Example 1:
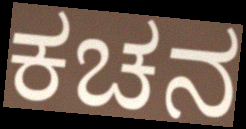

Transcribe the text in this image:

ಕಚನ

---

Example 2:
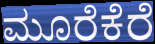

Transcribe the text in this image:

ಮೂರೆಕೆರೆ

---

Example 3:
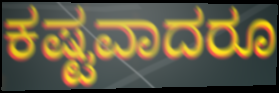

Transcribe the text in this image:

ಕಷ್ಟವಾದರೂ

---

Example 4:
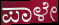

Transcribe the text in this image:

ಪಾಳೇ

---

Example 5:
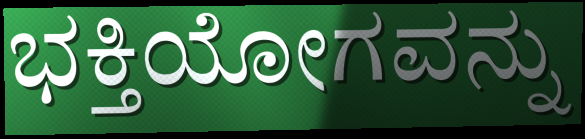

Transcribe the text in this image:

ಭಕ್ತಿಯೋಗವನ್ನು